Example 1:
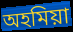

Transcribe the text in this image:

অহমিয়া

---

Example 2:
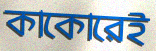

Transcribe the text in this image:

কাকোৱেই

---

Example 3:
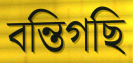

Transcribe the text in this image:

বন্তিগছি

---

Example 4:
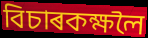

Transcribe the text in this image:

বিচাৰকক্ষলৈ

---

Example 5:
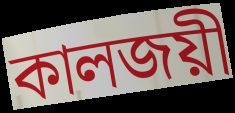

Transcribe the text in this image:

কালজয়ী